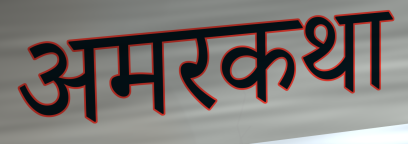
अमरकथा